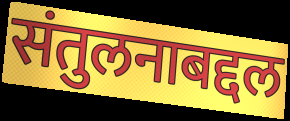
संतुलनाबद्दल